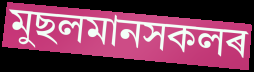
মুছলমানসকলৰ